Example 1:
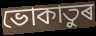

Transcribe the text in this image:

ভোকাতুৰ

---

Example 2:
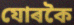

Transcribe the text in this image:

যোৰকৈ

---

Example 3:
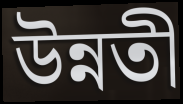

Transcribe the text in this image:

উন্নতী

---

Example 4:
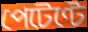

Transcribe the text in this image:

পেটেণ্টে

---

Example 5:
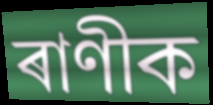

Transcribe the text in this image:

ৰাণীক